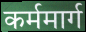
कर्ममार्ग